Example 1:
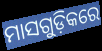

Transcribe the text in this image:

ମାସଗୁଡ଼ିକରେ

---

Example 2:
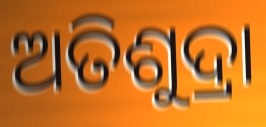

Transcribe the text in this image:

ଅତିଶୁଦ୍ରା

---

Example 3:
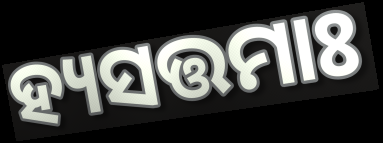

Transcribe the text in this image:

ହ୍ୟସତ୍ତମାଃ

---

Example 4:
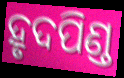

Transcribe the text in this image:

ହୃଦପିଣ୍ଡ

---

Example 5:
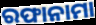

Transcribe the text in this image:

ରଫାନାମା